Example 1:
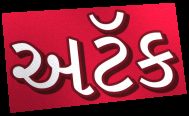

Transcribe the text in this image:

અટૅક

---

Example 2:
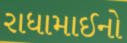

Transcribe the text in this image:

રાધામાઈનો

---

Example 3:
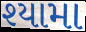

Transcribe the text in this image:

શ્યામા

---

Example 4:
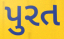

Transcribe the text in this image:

પુરત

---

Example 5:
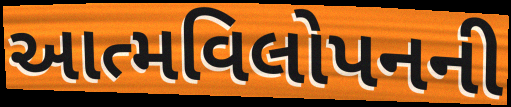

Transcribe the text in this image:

આત્મવિલોપનની